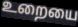
உறையை